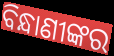
ବିନ୍ଧାଣୀଙ୍କର